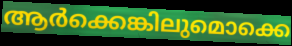
ആർക്കെങ്കിലുമൊക്കെ